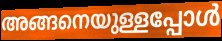
അങ്ങനെയുള്ളപ്പോൾ